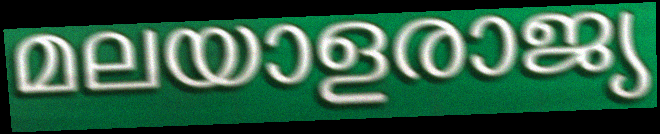
മലയാളരാജ്യ